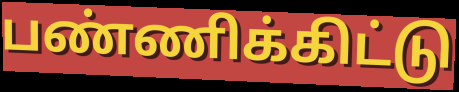
பண்ணிக்கிட்டு